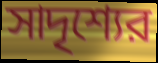
সাদৃশ্যের